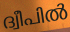
ദ്വീപിൽ